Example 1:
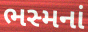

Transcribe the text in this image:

ભસ્મનાં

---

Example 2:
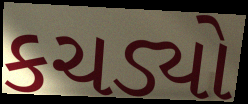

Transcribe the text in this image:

કચડ્યો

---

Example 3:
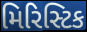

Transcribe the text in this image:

મિરિસ્ટિક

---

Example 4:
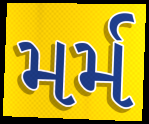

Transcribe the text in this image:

મર્મ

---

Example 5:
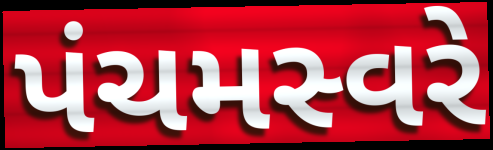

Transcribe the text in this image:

પંચમસ્વરે